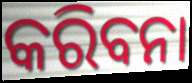
କରିବନା